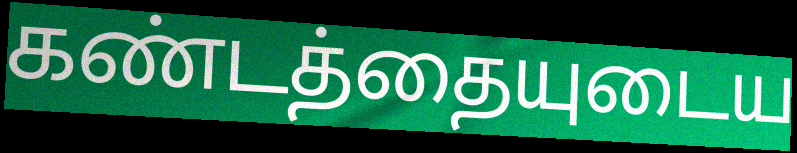
கண்டத்தையுடைய